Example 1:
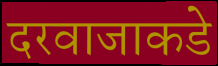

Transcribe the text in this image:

दरवाजाकडे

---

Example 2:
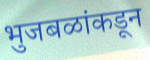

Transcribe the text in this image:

भुजबळांकडून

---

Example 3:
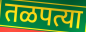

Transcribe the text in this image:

तळपत्या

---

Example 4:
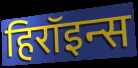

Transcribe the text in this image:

हिरॉइन्स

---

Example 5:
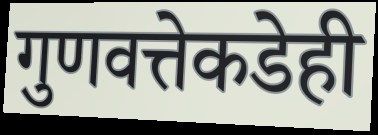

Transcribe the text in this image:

गुणवत्तेकडेही